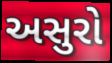
અસુરો